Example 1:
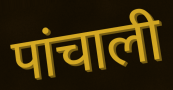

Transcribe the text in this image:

पांचाली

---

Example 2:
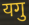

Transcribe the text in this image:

यगु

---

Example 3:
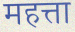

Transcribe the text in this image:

महत्ता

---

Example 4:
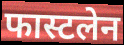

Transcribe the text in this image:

फास्टलेन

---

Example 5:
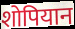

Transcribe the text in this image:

शोपियान